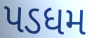
પડધમ